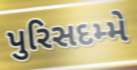
પુરિસદમ્મે